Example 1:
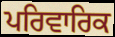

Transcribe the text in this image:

ਪਰਿਵਾਰਿਕ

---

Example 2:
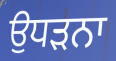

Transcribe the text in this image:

ਉਧੜਨਾ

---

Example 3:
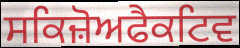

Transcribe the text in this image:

ਸਕਿਜ਼ੋਅਫੈਕਟਿਵ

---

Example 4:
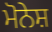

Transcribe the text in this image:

ਮੋਨੇਸ਼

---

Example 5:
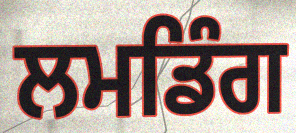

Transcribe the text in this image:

ਲਮਡਿੰਗ